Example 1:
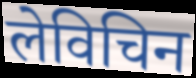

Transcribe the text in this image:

लेविचिन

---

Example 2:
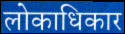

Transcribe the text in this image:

लोकाधिकार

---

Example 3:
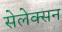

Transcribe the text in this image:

सेलेक्सन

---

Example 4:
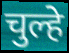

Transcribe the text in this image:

चुल्हे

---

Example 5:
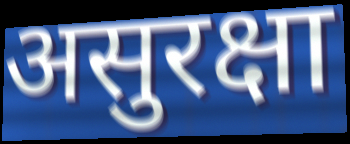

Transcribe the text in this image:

असुरक्षा